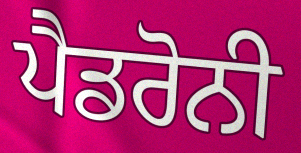
ਪੈਡਰੋਨੀ